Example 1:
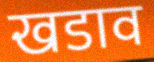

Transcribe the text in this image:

खडाव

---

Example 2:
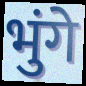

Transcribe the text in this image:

भुंगे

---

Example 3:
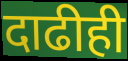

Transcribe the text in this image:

दाढीही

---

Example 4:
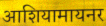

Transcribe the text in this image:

आशियामायनर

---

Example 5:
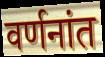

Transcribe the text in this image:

वर्णनांत